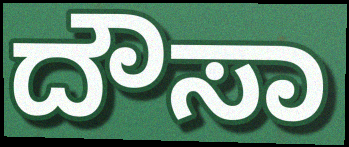
ದೌಸಾ